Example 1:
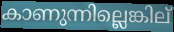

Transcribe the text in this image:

കാണുന്നില്ലെങ്കില്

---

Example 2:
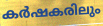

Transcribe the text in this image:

കർഷകരിലും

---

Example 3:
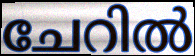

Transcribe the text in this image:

ചേറിൽ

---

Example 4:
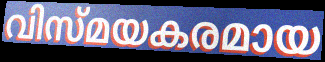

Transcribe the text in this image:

വിസ്മയകരമായ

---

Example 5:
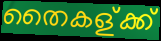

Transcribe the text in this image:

തൈകള്ക്ക്